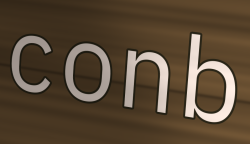
conb